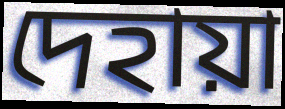
দেহায়া